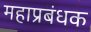
महाप्रबंधक